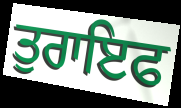
ਤੁਰਾਇਫ